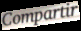
Compartir